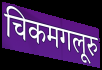
चिकमगलूरु